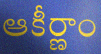
ఆకీర్ణాం